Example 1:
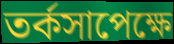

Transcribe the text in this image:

তর্কসাপেক্ষে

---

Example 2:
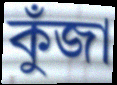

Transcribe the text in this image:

কুঁজা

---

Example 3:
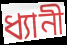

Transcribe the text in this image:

ধ্যানী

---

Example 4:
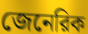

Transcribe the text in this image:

জেনেরিক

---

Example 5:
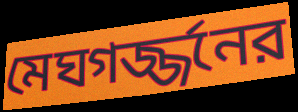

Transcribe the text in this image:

মেঘগর্জ্জনের